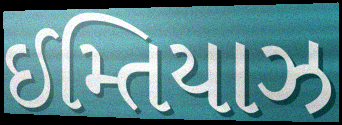
ઈમ્તિયાઝ